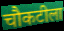
चौकटीला